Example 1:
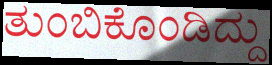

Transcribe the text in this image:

ತುಂಬಿಕೊಂಡಿದ್ದು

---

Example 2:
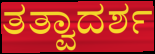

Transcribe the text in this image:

ತತ್ವಾದರ್ಶ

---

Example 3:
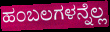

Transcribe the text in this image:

ಹಂಬಲಗಳನ್ನೆಲ್ಲ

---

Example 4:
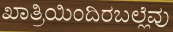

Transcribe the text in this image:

ಖಾತ್ರಿಯಿಂದಿರಬಲ್ಲೆವು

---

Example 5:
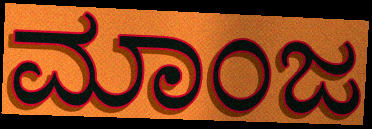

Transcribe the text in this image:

ಮಾಂಜ